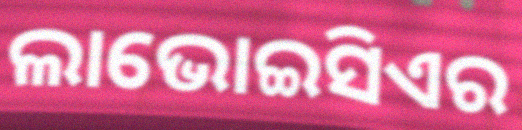
ଲାଭୋଇସିଏର